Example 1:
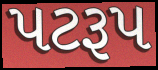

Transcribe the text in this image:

પટરૂપ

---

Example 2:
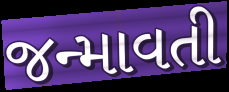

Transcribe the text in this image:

જન્માવતી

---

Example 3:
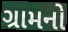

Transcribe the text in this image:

ગ્રામનો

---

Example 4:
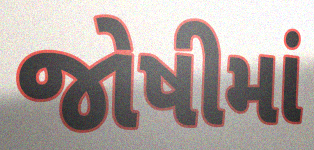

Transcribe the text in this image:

જોષીમાં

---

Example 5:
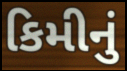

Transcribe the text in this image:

કિમીનું